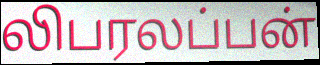
லிபரலப்பன்